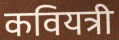
कवियत्री